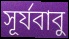
সূর্যবাবু